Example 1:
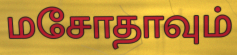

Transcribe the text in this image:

மசோதாவும்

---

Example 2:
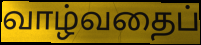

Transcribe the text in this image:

வாழ்வதைப்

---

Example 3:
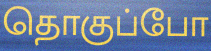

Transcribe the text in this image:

தொகுப்போ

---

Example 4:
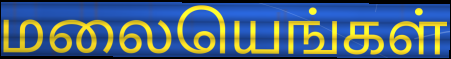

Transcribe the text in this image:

மலையெங்கள்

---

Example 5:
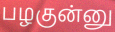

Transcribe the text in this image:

பழகுன்னு